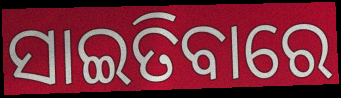
ସାଇତିବାରେ